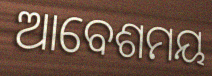
ଆବେଶମୟ